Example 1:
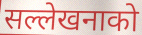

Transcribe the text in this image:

सल्लेखनाको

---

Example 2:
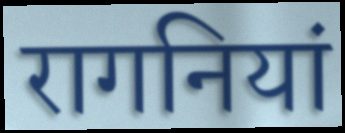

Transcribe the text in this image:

रागनियां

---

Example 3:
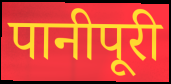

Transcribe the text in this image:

पानीपूरी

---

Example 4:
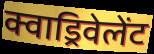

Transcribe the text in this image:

क्वाड्रिवेलेंट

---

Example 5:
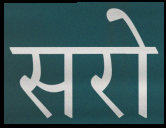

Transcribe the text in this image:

सरो